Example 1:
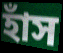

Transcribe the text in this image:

হাঁস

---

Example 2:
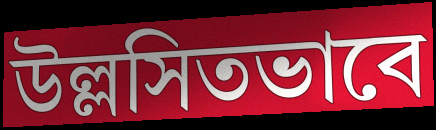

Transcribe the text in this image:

উল্লসিতভাবে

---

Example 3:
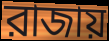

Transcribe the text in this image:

রাজায়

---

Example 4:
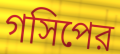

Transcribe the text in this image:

গসিপের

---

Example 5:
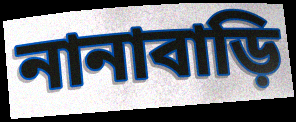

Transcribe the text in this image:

নানাবাড়ি